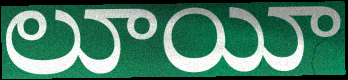
లూయీ